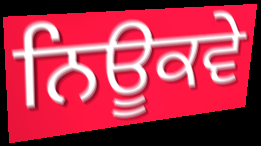
ਨਿਊਕਵੇ